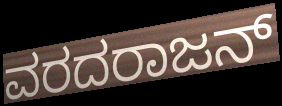
ವರದರಾಜನ್